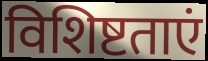
विशिष्टताएं